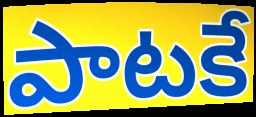
పాటకే